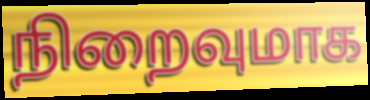
நிறைவுமாக